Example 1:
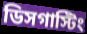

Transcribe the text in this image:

ডিসগাস্টিং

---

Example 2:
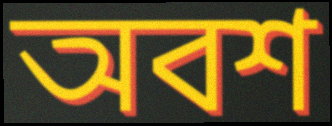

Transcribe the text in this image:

অবশ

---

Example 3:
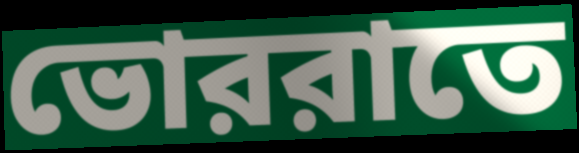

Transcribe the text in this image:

ভোররাতে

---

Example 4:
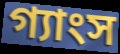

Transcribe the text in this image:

গ্যাংস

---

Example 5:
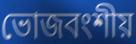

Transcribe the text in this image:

ভোজবংশীয়